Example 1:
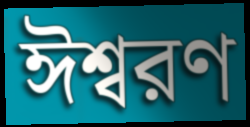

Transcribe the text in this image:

ঈশ্বরণ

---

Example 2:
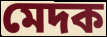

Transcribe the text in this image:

মেদক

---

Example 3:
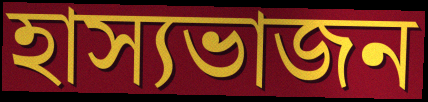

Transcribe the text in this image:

হাস্যভাজন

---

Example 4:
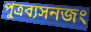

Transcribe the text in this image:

পুত্রব্যসনজং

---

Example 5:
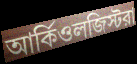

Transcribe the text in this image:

আর্কিওলজিস্টরা